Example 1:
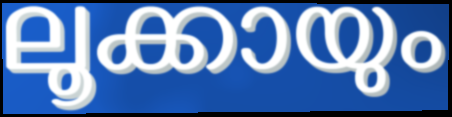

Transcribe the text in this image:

ലൂക്കായും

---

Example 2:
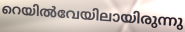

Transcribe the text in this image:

റെയിൽവേയിലായിരുന്നു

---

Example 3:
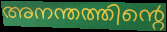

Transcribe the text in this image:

അനന്തത്തിന്റെ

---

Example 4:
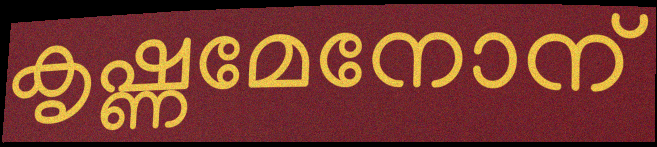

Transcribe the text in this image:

കൃഷ്ണമേനോന്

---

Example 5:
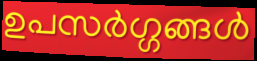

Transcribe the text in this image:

ഉപസർഗ്ഗങ്ങൾ